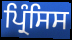
ਪ੍ਰਿੰਸਿਸ